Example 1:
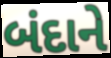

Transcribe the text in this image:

બંદાને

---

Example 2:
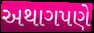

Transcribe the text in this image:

અથાગપણે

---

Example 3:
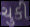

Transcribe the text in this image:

ચુકી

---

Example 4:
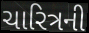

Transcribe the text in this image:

ચારિત્રની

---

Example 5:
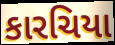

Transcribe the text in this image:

કારચિયા